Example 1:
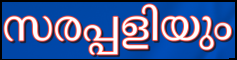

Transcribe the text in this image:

സരപ്പളിയും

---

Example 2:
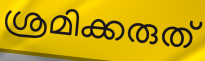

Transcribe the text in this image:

ശ്രമിക്കരുത്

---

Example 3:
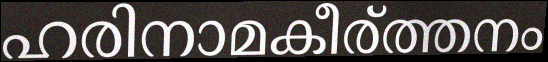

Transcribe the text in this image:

ഹരിനാമകീര്ത്തനം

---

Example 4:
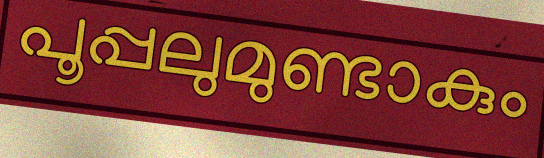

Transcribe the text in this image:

പൂപ്പലുമുണ്ടാകും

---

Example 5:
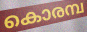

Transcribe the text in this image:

കൊരമ്പ